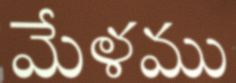
మేళము